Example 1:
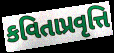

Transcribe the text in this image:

કવિતાપ્રવૃત્તિ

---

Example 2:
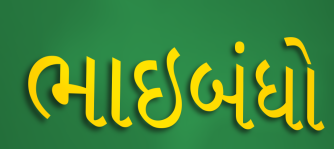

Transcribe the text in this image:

ભાઇબંધો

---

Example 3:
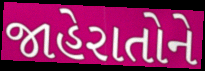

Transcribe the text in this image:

જાહેરાતોને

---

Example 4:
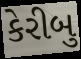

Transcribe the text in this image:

કેરીબુ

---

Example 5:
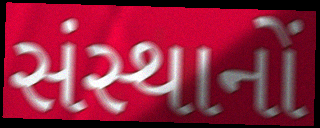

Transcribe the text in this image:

સંસ્થાનોં